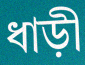
ধাড়ী